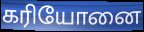
கரியோனை